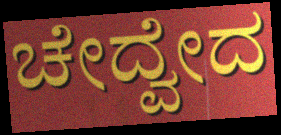
ಚೇದ್ವೇದ